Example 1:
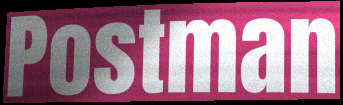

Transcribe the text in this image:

Postman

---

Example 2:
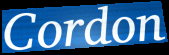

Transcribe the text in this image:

Cordon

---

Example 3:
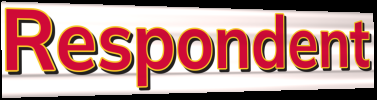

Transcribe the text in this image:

Respondent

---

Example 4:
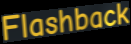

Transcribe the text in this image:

Flashback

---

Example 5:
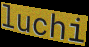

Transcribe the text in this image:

luchi